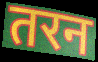
तरन